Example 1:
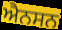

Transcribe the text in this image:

ਐਨਸਨ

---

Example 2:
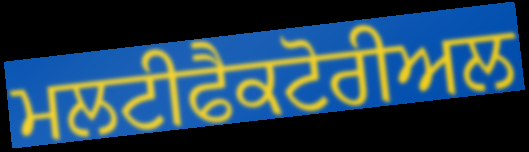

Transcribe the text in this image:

ਮਲਟੀਫੈਕਟੋਰੀਅਲ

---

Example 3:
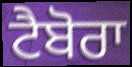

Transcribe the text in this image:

ਟੈਬੋਰਾ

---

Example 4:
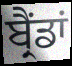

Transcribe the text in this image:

ਬ੍ਰੈਂਡਾਂ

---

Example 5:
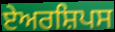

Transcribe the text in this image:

ਏਅਰਸ਼ਿਪਸ